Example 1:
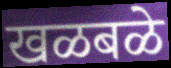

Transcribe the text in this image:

खळबळे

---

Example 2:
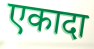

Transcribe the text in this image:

एकादा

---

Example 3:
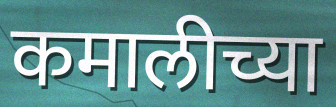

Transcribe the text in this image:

कमालीच्या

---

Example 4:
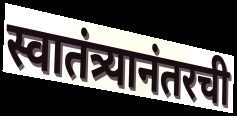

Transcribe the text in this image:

स्वातंत्र्यानंतरची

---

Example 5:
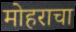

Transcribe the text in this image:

मोहराचा